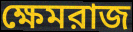
ক্ষেমরাজ